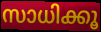
സാധിക്കൂ